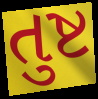
તુષ્ટ